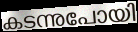
കടന്നുപോയി